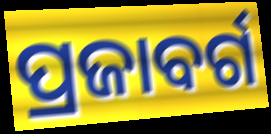
ପ୍ରଜାବର୍ଗ